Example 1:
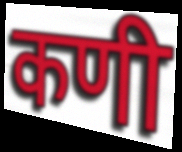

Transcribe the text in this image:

कणी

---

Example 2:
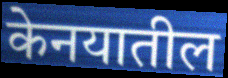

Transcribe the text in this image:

केनयातील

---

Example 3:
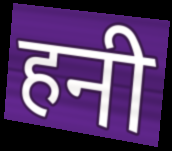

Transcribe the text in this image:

हनी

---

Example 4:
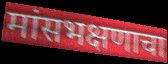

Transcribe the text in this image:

मांसभक्षणाचा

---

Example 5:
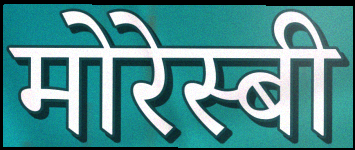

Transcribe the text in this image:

मोरेस्बी